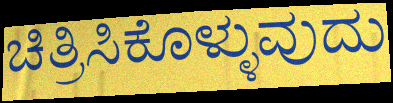
ಚಿತ್ರಿಸಿಕೊಳ್ಳುವುದು